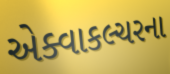
એક્વાકલ્ચરના